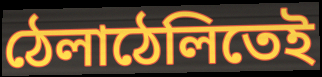
ঠেলাঠেলিতেই